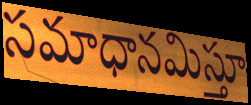
సమాధానమిస్తూ